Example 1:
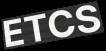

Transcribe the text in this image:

ETCS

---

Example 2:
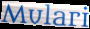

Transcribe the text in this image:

Mulari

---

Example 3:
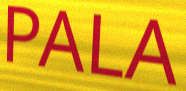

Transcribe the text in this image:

PALA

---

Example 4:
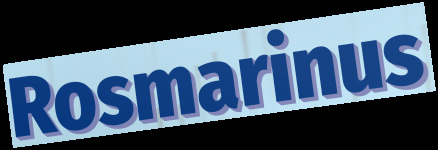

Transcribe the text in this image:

Rosmarinus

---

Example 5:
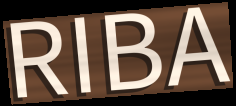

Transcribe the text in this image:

RIBA